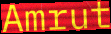
Amrut